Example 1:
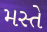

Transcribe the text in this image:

મસ્તે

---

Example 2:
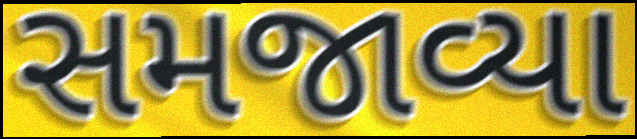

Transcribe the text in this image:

સમજાવ્યા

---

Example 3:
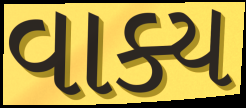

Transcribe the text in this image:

વાક્ય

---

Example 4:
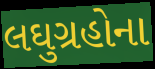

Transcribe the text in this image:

લઘુગ્રહોના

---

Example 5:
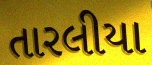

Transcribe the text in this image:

તારલીયા